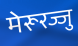
मेरूरज्जु